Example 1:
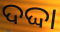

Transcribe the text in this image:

ଦଦ୍ଦା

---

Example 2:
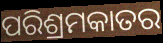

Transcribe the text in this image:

ପରିଶ୍ରମକାତର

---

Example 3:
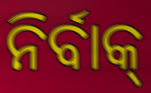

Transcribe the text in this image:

ନିର୍ବାକ୍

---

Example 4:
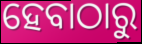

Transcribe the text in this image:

ହେବାଠାରୁ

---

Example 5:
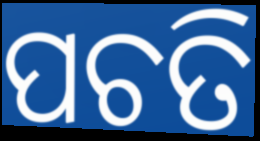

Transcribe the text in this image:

ପଚତି